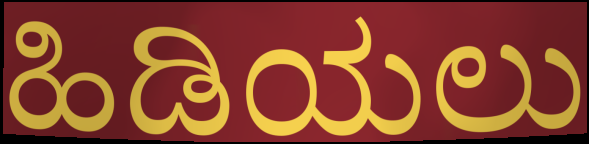
ಹಿಡಿಯಲು